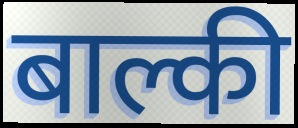
बाल्की